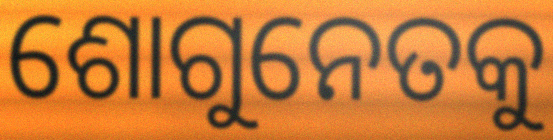
ଶୋଗୁନେତକୁ